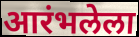
आरंभलेला